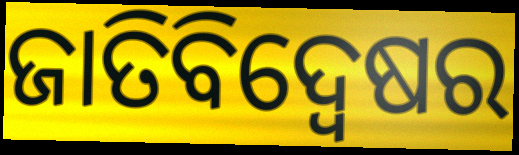
ଜାତିବିଦ୍ୱେଷର